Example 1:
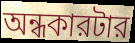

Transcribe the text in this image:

অন্ধকারটার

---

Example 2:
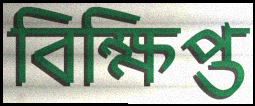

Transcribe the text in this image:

বিক্ষিপ্ত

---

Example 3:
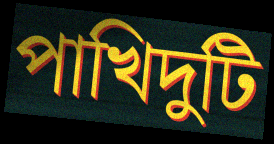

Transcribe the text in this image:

পাখিদুটি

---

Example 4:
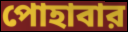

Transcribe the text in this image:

পোহাবার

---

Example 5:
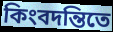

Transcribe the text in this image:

কিংবদন্তিতে